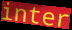
inter